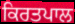
ਕਿਰਤਪਾਲ